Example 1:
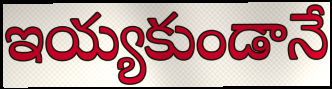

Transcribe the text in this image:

ఇయ్యకుండానే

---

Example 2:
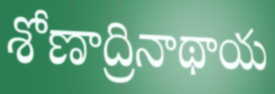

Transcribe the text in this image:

శోణాద్రినాథాయ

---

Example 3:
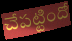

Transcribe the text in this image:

చేపట్టిందో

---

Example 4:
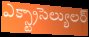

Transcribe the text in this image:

ఎక్స్ట్రాసెల్యులర్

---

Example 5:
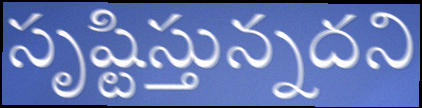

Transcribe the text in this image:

సృష్టిస్తున్నదని